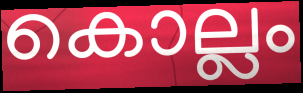
കൊല്ലം